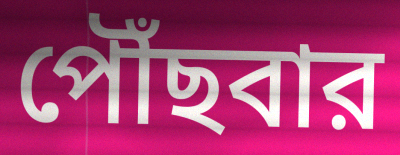
পৌঁছবার